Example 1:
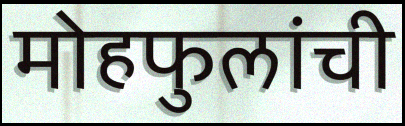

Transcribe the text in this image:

मोहफुलांची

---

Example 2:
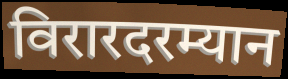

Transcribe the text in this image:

विरारदरम्यान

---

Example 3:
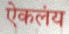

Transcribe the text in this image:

ऐकलंय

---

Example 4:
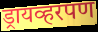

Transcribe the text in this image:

ड्रायव्हरपण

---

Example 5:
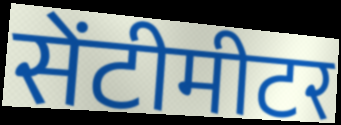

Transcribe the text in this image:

सेंटीमीटर